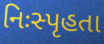
નિઃસ્પૃહતા